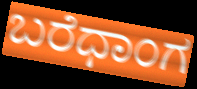
ಬರೆಧಾಂಗ